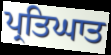
ਪ੍ਰਤਿਘਾਤ